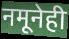
नमूनेही